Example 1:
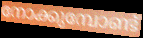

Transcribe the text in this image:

നോക്കുമ്പോണ്ട്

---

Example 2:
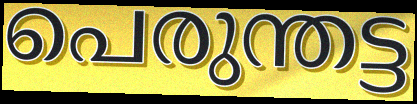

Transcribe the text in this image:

പെരുന്തട്ട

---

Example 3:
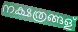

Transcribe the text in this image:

നക്ഷത്രങ്ങള്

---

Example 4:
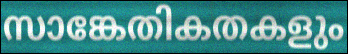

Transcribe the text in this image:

സാങ്കേതികതകളും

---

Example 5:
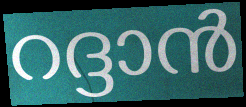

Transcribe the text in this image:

റദ്ദാൻ